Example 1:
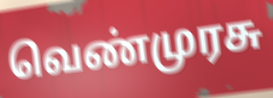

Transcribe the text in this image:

வெண்முரசு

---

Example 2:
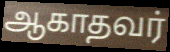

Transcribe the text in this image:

ஆகாதவர்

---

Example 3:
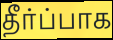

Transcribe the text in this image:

தீர்ப்பாக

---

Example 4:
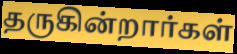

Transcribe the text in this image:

தருகின்றார்கள்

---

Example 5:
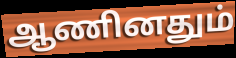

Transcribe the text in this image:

ஆணினதும்